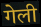
गेली